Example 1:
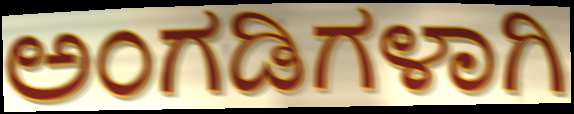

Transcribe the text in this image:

ಅಂಗಡಿಗಳಾಗಿ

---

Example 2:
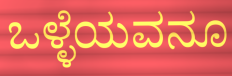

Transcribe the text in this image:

ಒಳ್ಳೆಯವನೂ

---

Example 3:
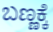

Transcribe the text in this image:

ಬಣ್ಣಕ್ಕೆ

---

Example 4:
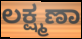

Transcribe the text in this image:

ಲಕ್ಷ್ಮಣಾ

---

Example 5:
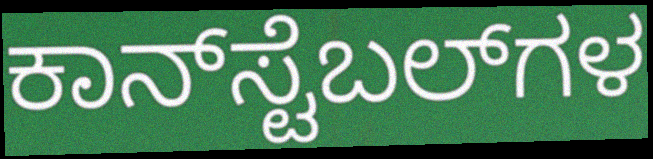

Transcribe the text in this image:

ಕಾನ್‌ಸ್ಟೆಬಲ್‌ಗಳ